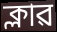
ক্লাৱ